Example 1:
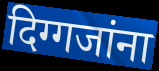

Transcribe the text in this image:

दिग्गजांना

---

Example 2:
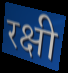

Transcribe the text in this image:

रक्षी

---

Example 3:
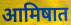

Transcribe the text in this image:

आमिषात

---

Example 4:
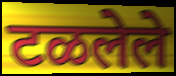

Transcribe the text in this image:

टळलेले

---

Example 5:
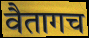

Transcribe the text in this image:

वैतागच